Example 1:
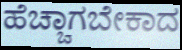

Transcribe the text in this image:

ಹೆಚ್ಚಾಗಬೇಕಾದ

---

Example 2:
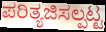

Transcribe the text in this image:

ಪರಿತ್ಯಜಿಸಲ್ಪಟ್ಟ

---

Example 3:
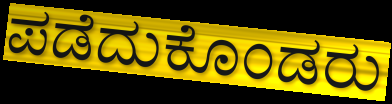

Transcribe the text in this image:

ಪಡೆದುಕೊಂಡರು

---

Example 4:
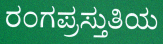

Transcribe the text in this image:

ರಂಗಪ್ರಸ್ತುತಿಯ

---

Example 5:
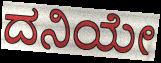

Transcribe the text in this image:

ದನಿಯೇ